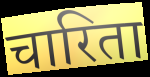
चारिता